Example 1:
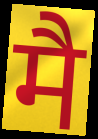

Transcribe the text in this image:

मै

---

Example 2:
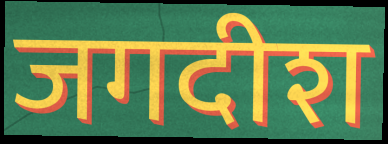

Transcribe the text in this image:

जगदीश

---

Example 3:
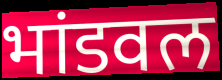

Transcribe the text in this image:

भांडवल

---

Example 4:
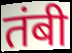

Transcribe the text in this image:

तंबी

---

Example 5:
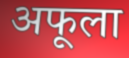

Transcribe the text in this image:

अफूला